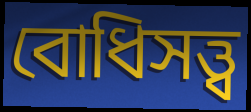
বোধিসত্ত্ব